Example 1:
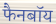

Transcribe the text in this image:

फैनबॉय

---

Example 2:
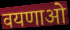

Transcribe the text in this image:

वयणाओ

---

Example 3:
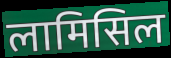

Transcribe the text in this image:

लामिसिल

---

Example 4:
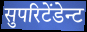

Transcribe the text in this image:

सुपरिटेंडेन्ट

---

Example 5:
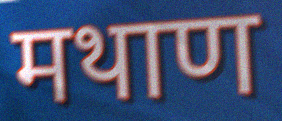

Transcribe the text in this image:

मथाण